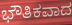
ಭೌತಿಕವಾದ